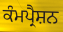
ਕੰਮਪ੍ਰੈਸ਼ਨ